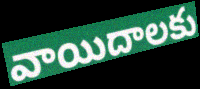
వాయిదాలకు